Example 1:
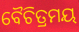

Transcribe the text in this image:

ବୈଚିତ୍ରମୟ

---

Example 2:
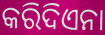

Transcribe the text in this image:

କରିଦିଏନା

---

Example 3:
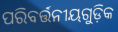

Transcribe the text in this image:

ପରିବର୍ତ୍ତନୀୟଗୁଡ଼ିକ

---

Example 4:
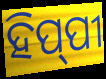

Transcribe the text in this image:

ହିପ୍‍ପୀ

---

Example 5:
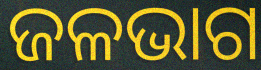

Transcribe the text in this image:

ଜଳଭାଗ